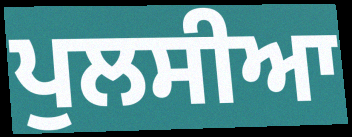
ਪੁਲਸੀਆ